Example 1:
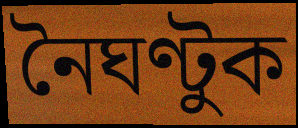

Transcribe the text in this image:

নৈঘণ্টুক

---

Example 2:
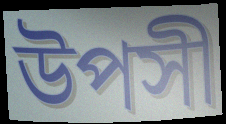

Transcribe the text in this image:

উপসী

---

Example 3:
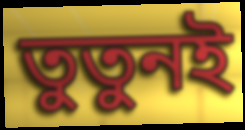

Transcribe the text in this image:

তুতুনই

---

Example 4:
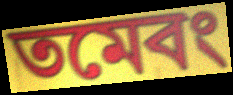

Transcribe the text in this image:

তমেবং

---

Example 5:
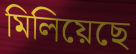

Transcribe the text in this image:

মিলিয়েছে